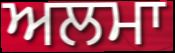
ਅਲਮਾ